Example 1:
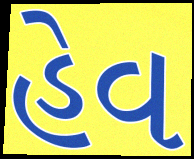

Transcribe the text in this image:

હેવ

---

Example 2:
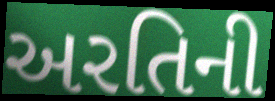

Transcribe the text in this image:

અરતિની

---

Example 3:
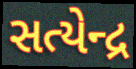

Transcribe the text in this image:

સત્યેન્દ્ર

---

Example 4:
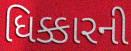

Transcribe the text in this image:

ધિક્કારની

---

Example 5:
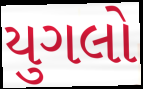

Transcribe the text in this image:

યુગલો